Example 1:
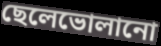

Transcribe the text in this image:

ছেলেভোলানো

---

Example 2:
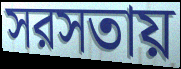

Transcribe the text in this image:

সরসতায়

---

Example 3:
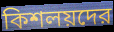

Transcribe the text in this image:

কিশলয়দের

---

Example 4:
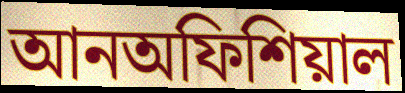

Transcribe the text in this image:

আনঅফিশিয়াল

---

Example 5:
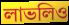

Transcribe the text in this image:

লাভলিও